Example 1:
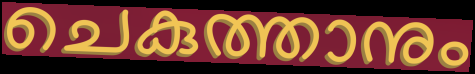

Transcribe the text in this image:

ചെകുത്താനും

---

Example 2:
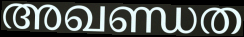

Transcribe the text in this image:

അഖണ്ഡത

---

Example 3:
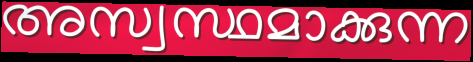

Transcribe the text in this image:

അസ്വസ്ഥമാക്കുന്ന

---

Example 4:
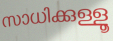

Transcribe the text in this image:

സാധിക്കുള്ളൂ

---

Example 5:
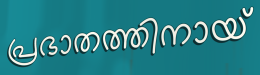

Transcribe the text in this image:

പ്രഭാതത്തിനായ്